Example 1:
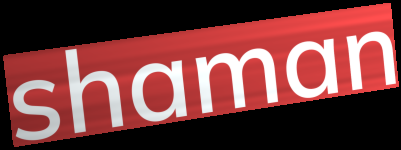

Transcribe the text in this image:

shaman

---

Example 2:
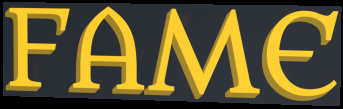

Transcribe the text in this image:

FAME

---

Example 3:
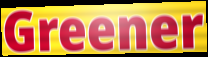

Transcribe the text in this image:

Greener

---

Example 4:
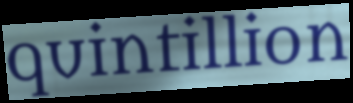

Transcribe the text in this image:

quintillion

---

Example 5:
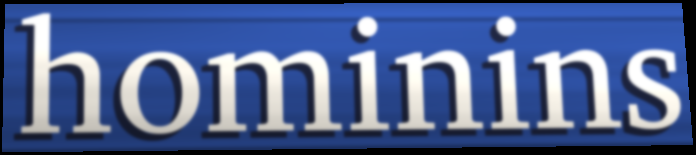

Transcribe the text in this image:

hominins